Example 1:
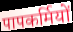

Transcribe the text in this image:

पापकर्मियों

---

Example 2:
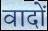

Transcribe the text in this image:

वादों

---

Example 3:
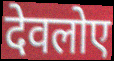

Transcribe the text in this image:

देवलोए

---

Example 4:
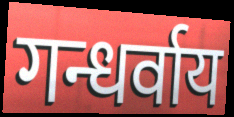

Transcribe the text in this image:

गन्धर्वाय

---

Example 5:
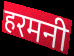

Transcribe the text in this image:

हरमनी